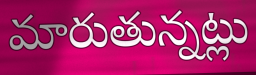
మారుతున్నట్లు